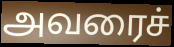
அவரைச்